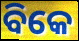
ବିକେ